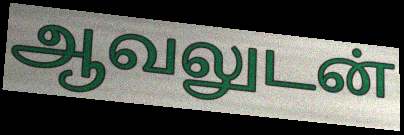
ஆவலுடன்